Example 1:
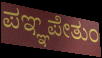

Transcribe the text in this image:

ಪಞ್ಞಪೇತುಂ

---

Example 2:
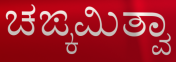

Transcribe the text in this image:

ಚಙ್ಕಮಿತ್ವಾ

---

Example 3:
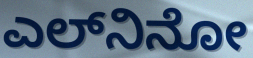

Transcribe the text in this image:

ಎಲ್‍ನಿನೋ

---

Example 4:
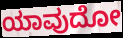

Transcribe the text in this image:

ಯಾವುದೋ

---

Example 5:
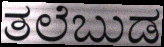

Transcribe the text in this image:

ತಲೆಬುಡ